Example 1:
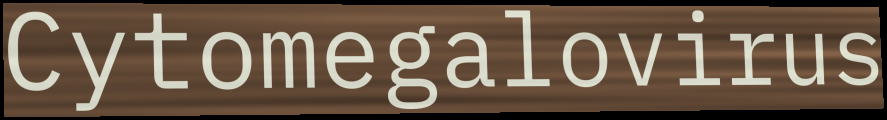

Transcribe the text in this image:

Cytomegalovirus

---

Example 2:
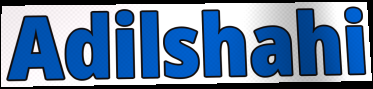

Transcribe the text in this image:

Adilshahi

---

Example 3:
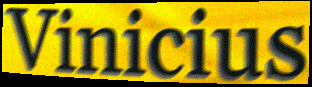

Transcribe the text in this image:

Vinicius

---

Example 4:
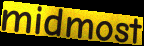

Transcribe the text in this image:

midmost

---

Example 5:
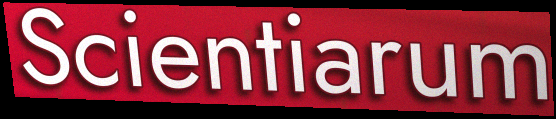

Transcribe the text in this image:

Scientiarum